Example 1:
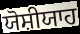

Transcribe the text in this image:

ਯੋਸ਼ੀਯਾਹ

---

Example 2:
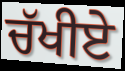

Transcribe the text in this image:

ਚੱਖੀਏ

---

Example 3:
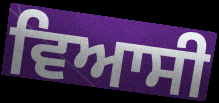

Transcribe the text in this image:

ਵਿਆਸੀ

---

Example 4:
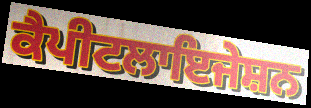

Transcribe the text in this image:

ਕੈਪੀਟਲਾਇਜੇਸ਼ਨ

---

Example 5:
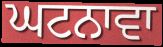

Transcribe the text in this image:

ਘਟਨਾਵਾ